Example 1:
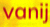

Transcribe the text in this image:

vanij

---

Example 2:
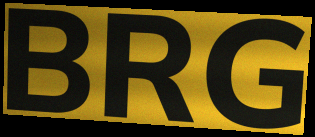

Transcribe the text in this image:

BRG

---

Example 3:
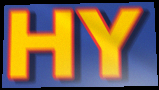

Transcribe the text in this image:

HY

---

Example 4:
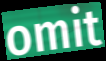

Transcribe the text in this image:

omit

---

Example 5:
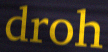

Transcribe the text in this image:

droh